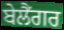
ਬੇਲੈਂਗਰ